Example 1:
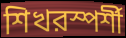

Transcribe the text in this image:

শিখরস্পর্শী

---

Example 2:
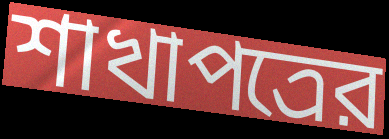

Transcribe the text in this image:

শাখাপত্রের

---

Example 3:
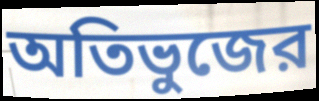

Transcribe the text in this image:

অতিভুজের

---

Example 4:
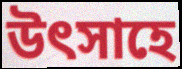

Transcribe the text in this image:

উত্‍সাহে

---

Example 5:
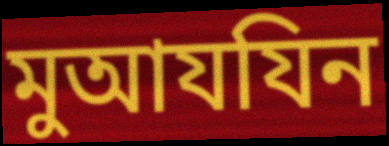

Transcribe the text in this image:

মুআযযিন